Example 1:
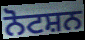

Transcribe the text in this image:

ਨੋਟਸ਼ਨ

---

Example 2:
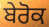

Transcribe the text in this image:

ਬੇਰੋਕ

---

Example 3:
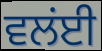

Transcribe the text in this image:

ਵਲਂਈ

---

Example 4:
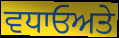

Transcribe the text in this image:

ਵਧਾਓਅਤੇ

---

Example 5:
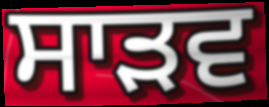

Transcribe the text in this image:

ਸਾੜਵ